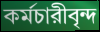
কর্মচারীবৃন্দ